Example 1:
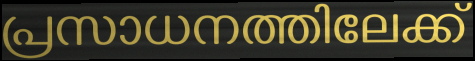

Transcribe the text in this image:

പ്രസാധനത്തിലേക്ക്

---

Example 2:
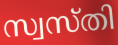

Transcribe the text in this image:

സ്വസ്തി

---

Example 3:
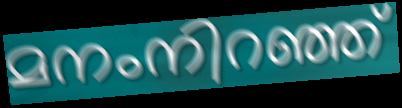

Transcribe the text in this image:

മനംനിറഞ്ഞ്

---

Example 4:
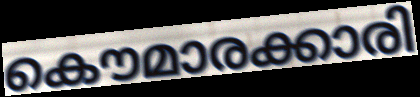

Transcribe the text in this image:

കൌമാരക്കാരി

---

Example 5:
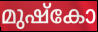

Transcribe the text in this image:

മുഷ്കോ